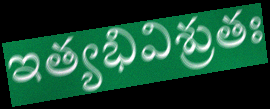
ఇత్యభివిశ్రుతః